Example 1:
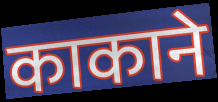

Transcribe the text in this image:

काकाने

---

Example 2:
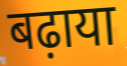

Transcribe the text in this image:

बढ़ाया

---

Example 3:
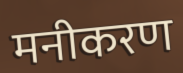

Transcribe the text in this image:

मनीकरण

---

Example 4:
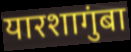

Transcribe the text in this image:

यारशागुंबा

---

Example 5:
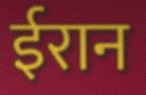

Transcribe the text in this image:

ईरान